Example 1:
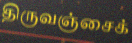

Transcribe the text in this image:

திருவஞ்சைக்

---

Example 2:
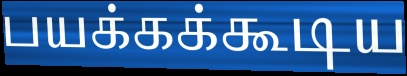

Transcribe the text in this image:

பயக்கக்கூடிய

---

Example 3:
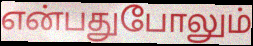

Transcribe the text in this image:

என்பதுபோலும்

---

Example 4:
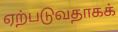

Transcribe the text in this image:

ஏற்படுவதாகக்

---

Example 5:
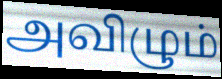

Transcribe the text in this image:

அவிழும்